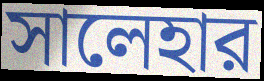
সালেহার